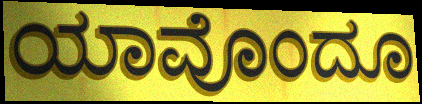
ಯಾವೊಂದೂ